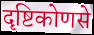
दृष्टिकोणसे